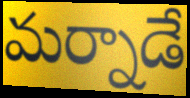
మర్నాడే